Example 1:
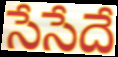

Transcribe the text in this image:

సేసేదే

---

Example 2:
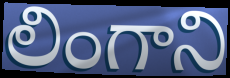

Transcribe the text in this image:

లింగాని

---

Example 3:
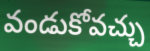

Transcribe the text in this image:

వండుకోవచ్చు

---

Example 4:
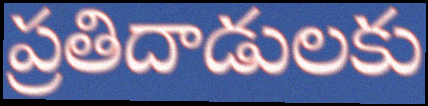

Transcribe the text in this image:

ప్రతిదాడులకు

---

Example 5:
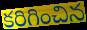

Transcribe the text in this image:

కరిగించిన